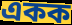
একক